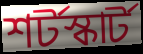
শর্টস্কার্ট